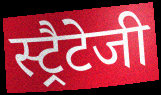
स्ट्रैटेजी